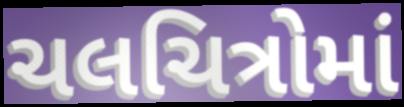
ચલચિત્રોમાં